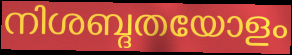
നിശബ്ദതയോളം